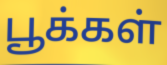
பூக்கள்